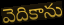
వెదికాను